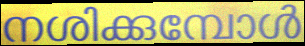
നശിക്കുമ്പോൾ